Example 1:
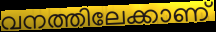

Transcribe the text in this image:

വനത്തിലേക്കാണ്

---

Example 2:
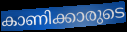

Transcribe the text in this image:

കാണിക്കാരുടെ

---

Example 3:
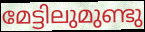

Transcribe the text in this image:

മേട്ടിലുമുണ്ടു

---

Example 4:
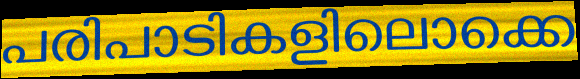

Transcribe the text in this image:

പരിപാടികളിലൊക്കെ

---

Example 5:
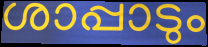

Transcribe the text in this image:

ശാപ്പാടും